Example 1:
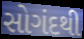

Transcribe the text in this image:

સોગંદથી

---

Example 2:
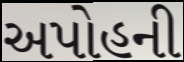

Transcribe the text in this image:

અપોહની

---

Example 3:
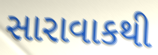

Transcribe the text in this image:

સારાવાકથી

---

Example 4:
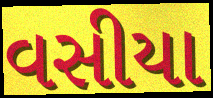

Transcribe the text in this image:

વસીયા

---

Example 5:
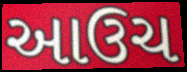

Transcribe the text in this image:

આઉચ